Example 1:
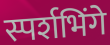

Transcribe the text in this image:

स्पर्शभिंगे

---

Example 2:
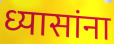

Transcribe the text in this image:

ध्यासांना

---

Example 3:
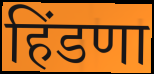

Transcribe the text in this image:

हिंडणा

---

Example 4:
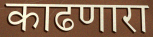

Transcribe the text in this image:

काढणारा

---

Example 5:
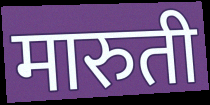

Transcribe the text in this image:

मारुती